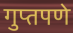
गुप्तपणे